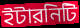
ইটারনিটি